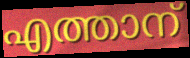
എത്താന്